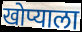
खोप्याला